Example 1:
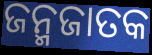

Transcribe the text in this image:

ଜନ୍ମଜାତକ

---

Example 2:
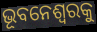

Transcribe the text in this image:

ଭୂବନେଶ୍ୱରକୁ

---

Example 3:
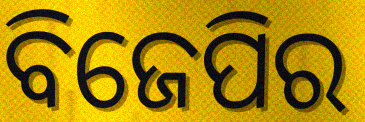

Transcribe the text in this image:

ବିଜେପିର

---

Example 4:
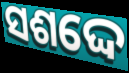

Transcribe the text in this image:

ସଶଦ୍ଦେ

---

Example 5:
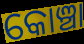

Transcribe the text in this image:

କୋଞ୍ଚା